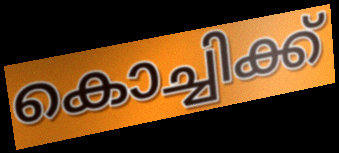
കൊച്ചിക്ക്